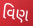
વિણ